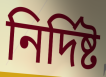
নিৰ্দিষ্ট